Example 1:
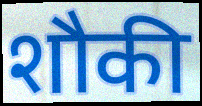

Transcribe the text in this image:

शौकी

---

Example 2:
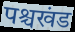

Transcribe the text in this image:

पश्चखंड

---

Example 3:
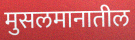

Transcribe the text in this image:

मुसलमानातील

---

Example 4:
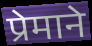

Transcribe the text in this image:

प्रेमाने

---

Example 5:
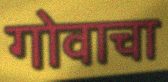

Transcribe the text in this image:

गोवाचा